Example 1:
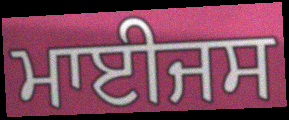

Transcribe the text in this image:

ਮਾਈਜਸ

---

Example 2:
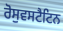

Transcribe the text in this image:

ਰੋਸੁਵਸਟੈਟਿਨ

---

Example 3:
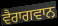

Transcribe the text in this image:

ਵੈਰਾਗਵਾਨ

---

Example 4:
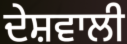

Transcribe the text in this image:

ਦੇਸ਼ਵਾਲੀ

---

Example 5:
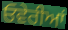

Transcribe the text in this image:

ਓਵੇਰੀਆਂ